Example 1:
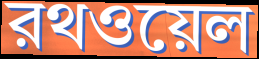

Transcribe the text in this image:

রথওয়েল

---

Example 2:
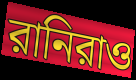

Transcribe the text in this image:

রানিরাও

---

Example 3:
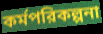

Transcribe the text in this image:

কর্মপরিকল্পনা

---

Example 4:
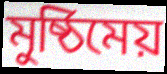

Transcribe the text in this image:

মুষ্ঠিমেয়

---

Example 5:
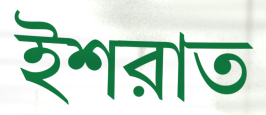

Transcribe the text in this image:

ইশরাত